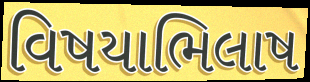
વિષયાભિલાષ